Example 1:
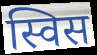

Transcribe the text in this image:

स्विस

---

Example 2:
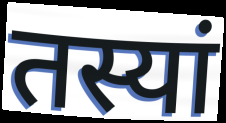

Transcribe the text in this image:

तस्यां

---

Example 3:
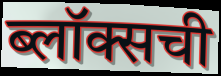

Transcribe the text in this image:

ब्लॉक्सची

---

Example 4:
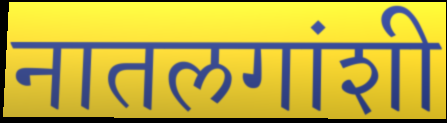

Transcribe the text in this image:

नातलगांशी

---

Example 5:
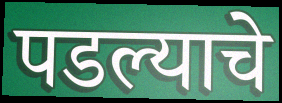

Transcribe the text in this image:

पडल्याचे